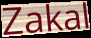
Zakal